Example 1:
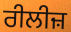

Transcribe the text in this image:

ਰੀਲੀਜ਼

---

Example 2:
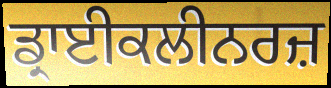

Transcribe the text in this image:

ਡ੍ਰਾਈਕਲੀਨਰਜ਼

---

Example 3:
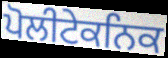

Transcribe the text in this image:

ਪੋਲੀਟੇਕਨਿਕ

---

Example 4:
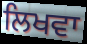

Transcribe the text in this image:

ਲਿਖਵਾ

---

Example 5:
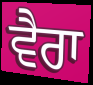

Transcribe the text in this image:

ਵੈਰਾ